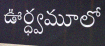
ఊర్ధ్వమూలో